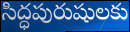
సిద్ధపురుషులకు